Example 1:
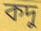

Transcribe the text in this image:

কদু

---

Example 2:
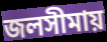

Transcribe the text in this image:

জলসীমায়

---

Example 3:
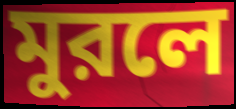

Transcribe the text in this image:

মুরলে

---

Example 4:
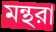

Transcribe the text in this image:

মন্থরা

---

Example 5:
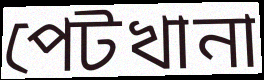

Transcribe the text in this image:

পেটখানা